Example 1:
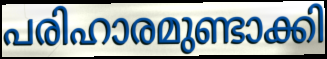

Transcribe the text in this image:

പരിഹാരമുണ്ടാക്കി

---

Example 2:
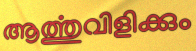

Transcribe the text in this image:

ആൎത്തുവിളിക്കും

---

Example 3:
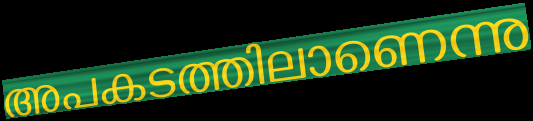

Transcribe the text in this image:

അപകടത്തിലാണെന്നു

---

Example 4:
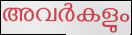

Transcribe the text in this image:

അവർകളും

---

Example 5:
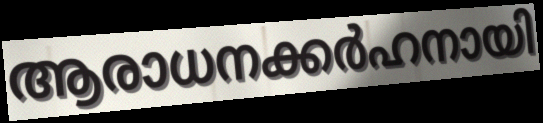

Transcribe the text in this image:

ആരാധനക്കർഹനായി